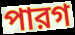
পারগ